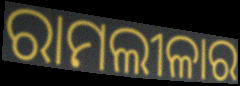
ରାମଲୀଳାର